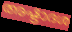
അഷ്ടാദശ